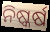
ନିଷ୍କର୍ଷ